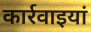
कार्रवाइयां